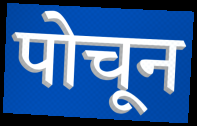
पोचून